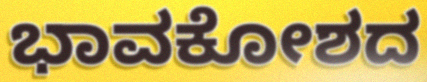
ಭಾವಕೋಶದ